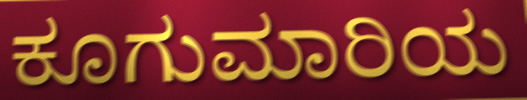
ಕೂಗುಮಾರಿಯ